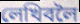
লেখিবলৈ